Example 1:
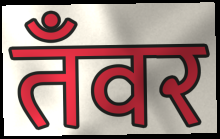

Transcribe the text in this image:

तँवर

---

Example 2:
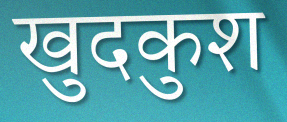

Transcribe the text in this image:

खुदकुश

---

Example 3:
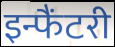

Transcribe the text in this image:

इन्फैंटरी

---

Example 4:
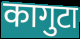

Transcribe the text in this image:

कागुटा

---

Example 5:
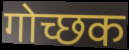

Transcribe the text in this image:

गोच्छक